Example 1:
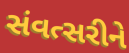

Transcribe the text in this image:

સંવત્સરીને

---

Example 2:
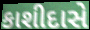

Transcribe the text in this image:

કાશીદાસે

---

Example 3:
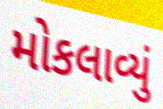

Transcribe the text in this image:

મોકલાવ્યું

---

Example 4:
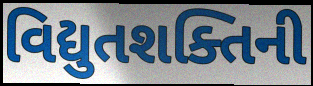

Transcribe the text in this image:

વિદ્યુતશક્તિની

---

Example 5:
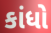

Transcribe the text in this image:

કાંધો